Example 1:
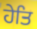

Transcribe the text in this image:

ਹੇਤਿ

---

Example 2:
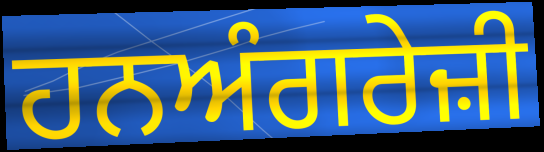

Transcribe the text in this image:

ਹਨਅੰਗਰੇਜ਼ੀ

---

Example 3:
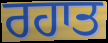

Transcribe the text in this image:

ਰਹਾਤ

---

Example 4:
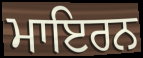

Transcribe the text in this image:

ਮਾਇਰਨ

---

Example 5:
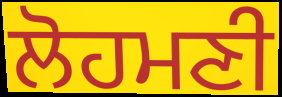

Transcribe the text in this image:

ਲੋਹਮਣੀ